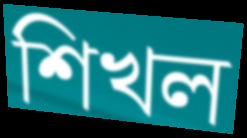
শিখল